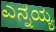
ಎನ್ನಯ್ಯ